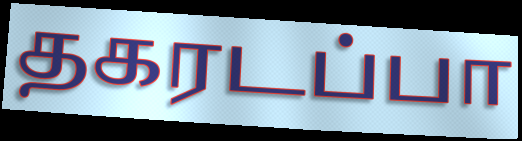
தகரடப்பா